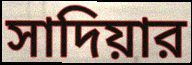
সাদিয়ার